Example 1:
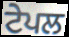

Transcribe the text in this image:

ਟੇਪਲ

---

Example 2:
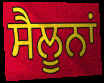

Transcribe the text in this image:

ਸੈਲੂਨਾਂ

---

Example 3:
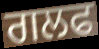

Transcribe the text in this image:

ਗਲਫ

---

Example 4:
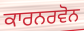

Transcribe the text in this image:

ਕਾਰਨਰਵੋਨ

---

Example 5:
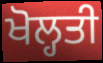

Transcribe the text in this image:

ਖੋਲ੍ਹਤੀ